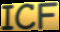
ICF